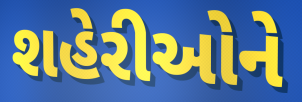
શહેરીઓને